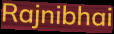
Rajnibhai